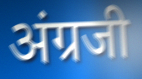
अंग्रजी